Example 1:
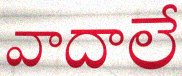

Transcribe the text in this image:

వాదాలే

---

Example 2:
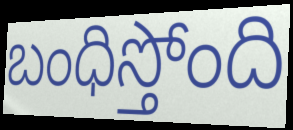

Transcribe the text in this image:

బంధిస్తోంది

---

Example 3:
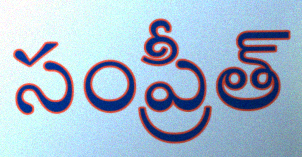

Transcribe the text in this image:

సంప్రీత్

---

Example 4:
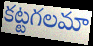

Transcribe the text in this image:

కట్టగలమా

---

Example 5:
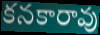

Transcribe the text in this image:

కనకారావు